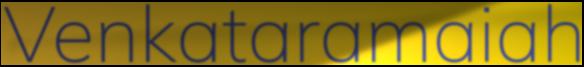
Venkataramaiah